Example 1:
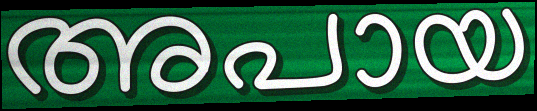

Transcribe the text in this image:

അപായ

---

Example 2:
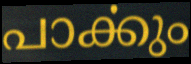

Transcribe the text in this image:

പാൎക്കും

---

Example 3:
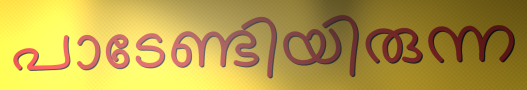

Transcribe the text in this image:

പാടേണ്ടിയിരുന്ന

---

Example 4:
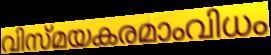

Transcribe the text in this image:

വിസ്മയകരമാംവിധം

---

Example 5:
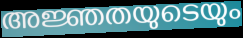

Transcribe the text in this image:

അജ്ഞതയുടെയും